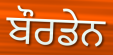
ਬੌਰਡੇਨ